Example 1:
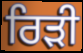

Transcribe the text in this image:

ਰਿੜੀ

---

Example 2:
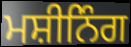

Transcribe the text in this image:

ਮਸ਼ੀਨਿੰਗ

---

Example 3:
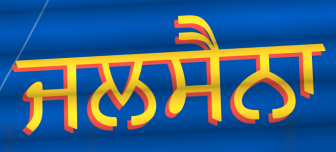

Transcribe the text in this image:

ਜਲਸੈਨਾ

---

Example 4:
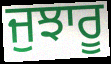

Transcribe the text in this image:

ਜੁਝਾਰੂ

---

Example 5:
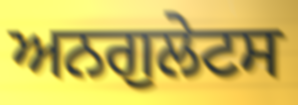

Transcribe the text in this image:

ਅਨਗੁਲੇਟਸ